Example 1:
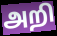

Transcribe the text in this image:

அறி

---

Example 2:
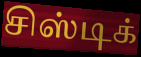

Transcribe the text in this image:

சிஸ்டிக்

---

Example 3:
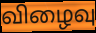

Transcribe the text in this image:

விழைவு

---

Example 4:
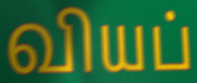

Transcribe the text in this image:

வியப்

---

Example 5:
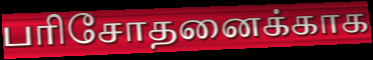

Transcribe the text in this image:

பரிசோதனைக்காக